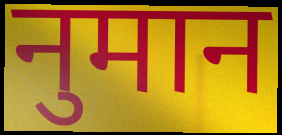
नुमान